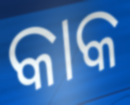
କାକ